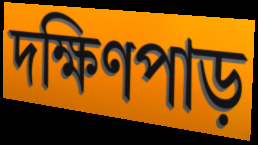
দক্ষিণপাড়